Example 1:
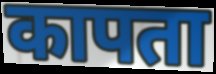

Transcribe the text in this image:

कापता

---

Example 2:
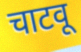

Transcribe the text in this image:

चाटवू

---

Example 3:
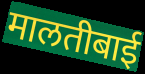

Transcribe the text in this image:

मालतीबाई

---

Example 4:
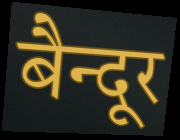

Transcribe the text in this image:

बैन्दूर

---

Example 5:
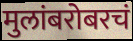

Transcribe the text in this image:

मुलांबरोबरचं